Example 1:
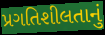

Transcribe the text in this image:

પ્રગતિશીલતાનું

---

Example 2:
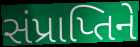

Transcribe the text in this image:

સંપ્રાપ્તિને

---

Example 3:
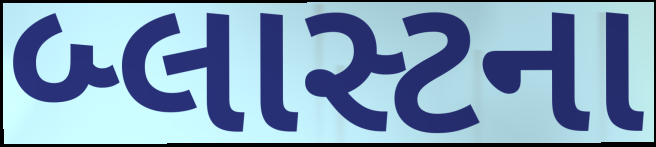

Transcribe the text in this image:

બ્લાસ્ટના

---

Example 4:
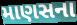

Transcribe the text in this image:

માણસના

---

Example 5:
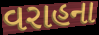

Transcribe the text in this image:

વરાહના